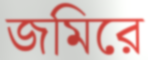
জমিরে